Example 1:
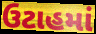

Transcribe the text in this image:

ઉટાહમાં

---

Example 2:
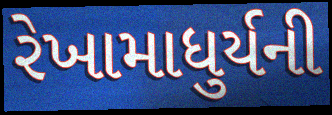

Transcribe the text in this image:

રેખામાધુર્યની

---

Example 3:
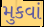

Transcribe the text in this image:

મુકવાં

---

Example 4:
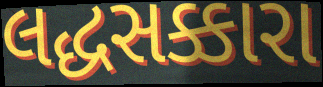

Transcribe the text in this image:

લદ્ધસક્કારા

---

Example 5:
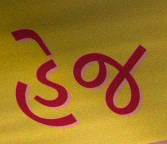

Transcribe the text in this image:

હેજ